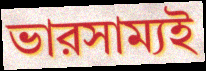
ভারসাম্যই